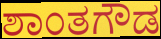
ಶಾಂತಗೌಡ